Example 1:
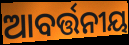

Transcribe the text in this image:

ଆବର୍ତ୍ତନୀୟ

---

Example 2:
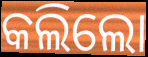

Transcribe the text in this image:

କଲିଲୋ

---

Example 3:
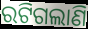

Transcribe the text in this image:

ରଟିଗଲାଣି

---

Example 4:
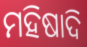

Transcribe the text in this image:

ମହିଷାଦି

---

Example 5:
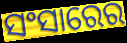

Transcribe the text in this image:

ସଂସାରେର